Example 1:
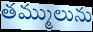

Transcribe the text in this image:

తమ్ములును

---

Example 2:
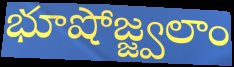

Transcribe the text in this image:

భూషోజ్జ్వలాం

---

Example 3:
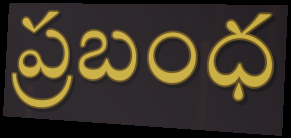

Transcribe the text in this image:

ప్రబంధ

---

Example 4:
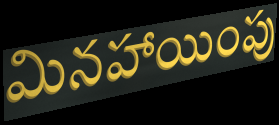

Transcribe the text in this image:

మినహాయింపు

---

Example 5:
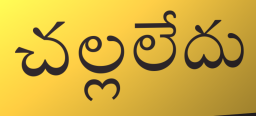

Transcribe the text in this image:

చల్లలేదు